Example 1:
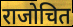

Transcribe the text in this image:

राजोचित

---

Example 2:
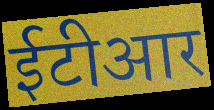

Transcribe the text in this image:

ईटीआर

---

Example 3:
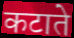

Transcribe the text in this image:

कटाते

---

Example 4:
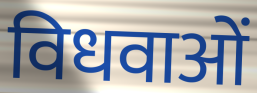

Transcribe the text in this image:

विधवाओं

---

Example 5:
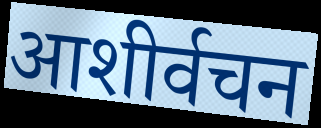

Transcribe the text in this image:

आशीर्वचन